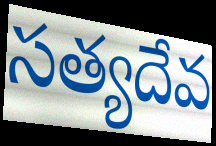
సత్యదేవ